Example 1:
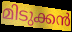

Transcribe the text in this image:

മിടുക്കൻ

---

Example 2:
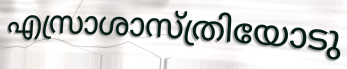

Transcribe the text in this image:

എസ്രാശാസ്ത്രിയോടു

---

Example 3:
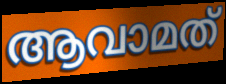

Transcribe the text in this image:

ആവാമത്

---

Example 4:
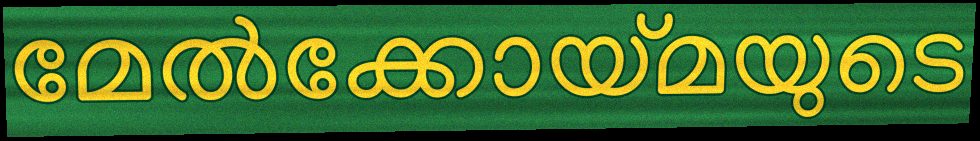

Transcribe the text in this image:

മേൽക്കോയ്മയുടെ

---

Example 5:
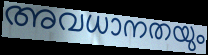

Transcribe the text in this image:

അവധാനതയും